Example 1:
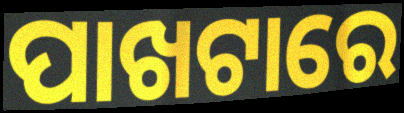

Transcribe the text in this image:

ପାଖଟାରେ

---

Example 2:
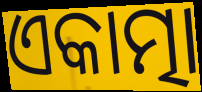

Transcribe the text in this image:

ଏକାତ୍ମା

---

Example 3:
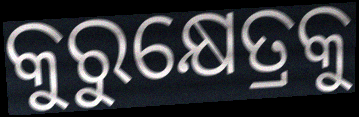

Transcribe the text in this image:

କୁରୁକ୍ଷେତ୍ରକୁ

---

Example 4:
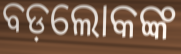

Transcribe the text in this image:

ବଡ଼ଲୋକଙ୍କ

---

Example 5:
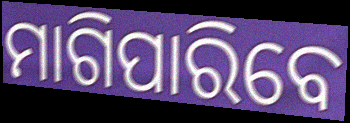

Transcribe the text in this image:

ମାଗିପାରିବେ